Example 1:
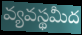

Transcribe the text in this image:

వ్యవస్థమీద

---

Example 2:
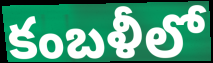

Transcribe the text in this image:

కంబళీలో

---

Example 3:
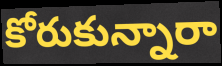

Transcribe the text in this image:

కోరుకున్నారా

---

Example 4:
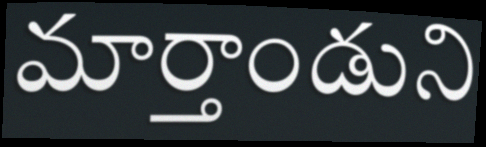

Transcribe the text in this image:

మార్తాండుని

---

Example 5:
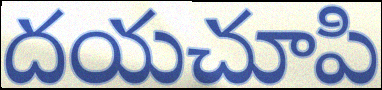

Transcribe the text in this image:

దయచూపి